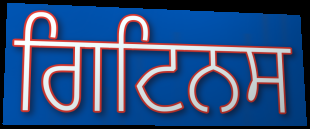
ਗਿਟਿਨਸ